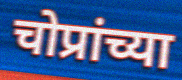
चोप्रांच्या